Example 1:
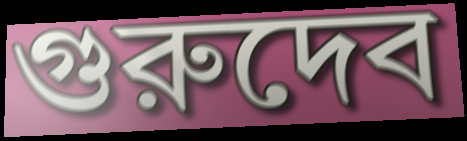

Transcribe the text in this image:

গুরুদেব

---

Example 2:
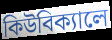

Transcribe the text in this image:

কিউবিক্যালে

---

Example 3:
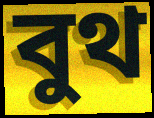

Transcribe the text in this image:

বুথ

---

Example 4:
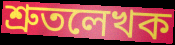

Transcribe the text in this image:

শ্রুতলেখক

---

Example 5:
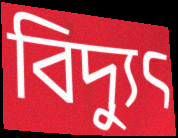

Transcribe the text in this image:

বিদ্যুৎ